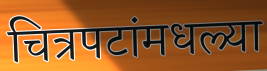
चित्रपटांमधल्या